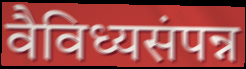
वैविध्यसंपन्न